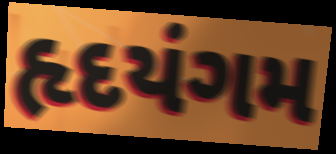
હૃદયંગમ